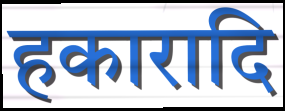
हकारादि